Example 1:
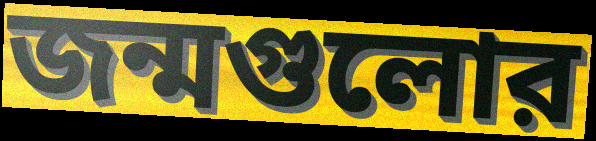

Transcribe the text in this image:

জন্মগুলোর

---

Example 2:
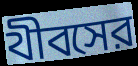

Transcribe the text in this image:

থীবসের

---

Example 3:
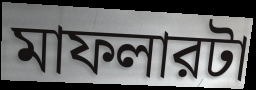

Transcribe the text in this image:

মাফলারটা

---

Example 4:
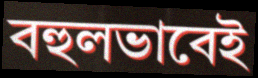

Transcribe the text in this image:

বহুলভাবেই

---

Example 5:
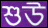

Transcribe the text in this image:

শুউ